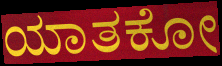
ಯಾತಕೋ